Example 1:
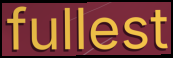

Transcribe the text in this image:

fullest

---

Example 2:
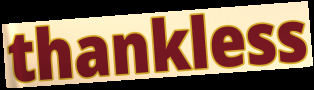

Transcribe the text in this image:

thankless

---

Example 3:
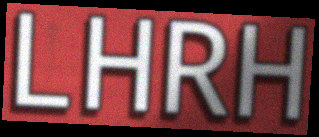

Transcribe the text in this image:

LHRH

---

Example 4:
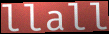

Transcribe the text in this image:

llall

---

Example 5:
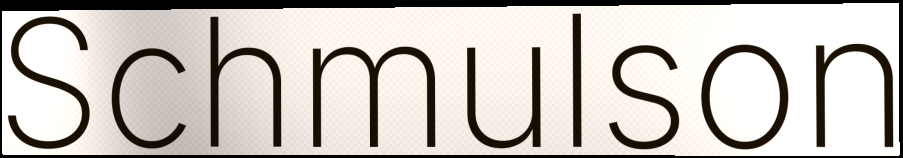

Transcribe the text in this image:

Schmulson